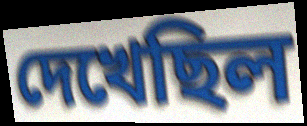
দেখেছিল